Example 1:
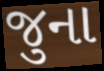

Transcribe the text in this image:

જુના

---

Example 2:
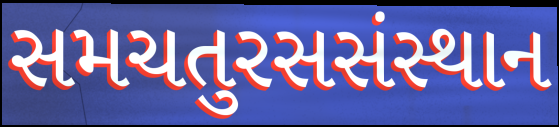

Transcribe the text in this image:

સમચતુરસસંસ્થાન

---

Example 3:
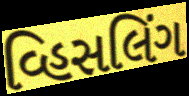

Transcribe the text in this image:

વ્હિસલિંગ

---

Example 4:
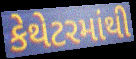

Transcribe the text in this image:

કેથેટરમાંથી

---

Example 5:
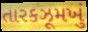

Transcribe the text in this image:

તારકઝૂમખું